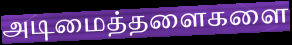
அடிமைத்தளைகளை